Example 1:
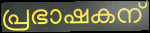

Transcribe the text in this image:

പ്രഭാഷകന്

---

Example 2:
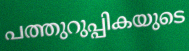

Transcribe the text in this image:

പത്തുറുപ്പികയുടെ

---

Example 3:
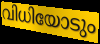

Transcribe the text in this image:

വിധിയോടും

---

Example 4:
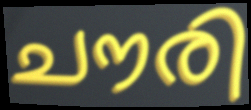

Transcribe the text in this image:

ചൗരി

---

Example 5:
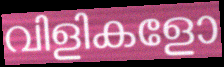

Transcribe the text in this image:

വിളികളോ